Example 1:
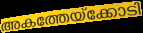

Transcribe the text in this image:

അകത്തേയ്‌ക്കോടി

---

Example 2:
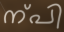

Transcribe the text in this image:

ന്പി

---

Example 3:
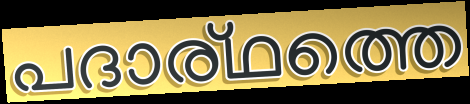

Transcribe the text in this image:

പദാര്ഥത്തെ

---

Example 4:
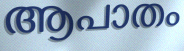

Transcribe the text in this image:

ആപാതം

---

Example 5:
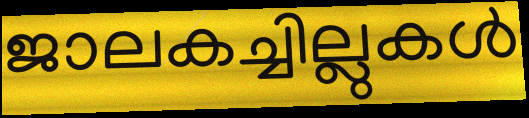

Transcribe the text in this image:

ജാലകച്ചില്ലുകൾ